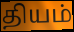
தியம்